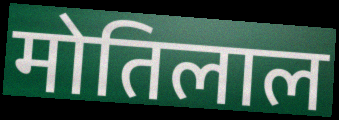
मोतिलाल